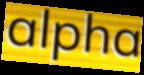
alpha